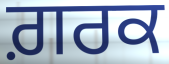
ਗ਼ਰਕ